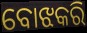
ବୋଝକରି